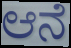
ಆನೆ